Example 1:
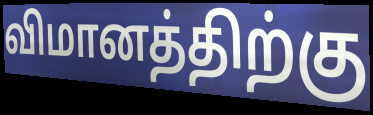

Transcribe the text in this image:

விமானத்திற்கு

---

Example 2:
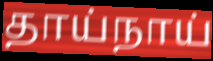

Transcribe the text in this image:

தாய்நாய்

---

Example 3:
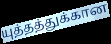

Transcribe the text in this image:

யுத்தத்துக்கான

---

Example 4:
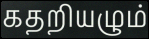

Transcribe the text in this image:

கதறியழும்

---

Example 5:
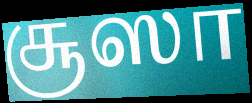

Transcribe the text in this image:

சூஸா